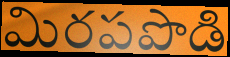
మిరపపొడి